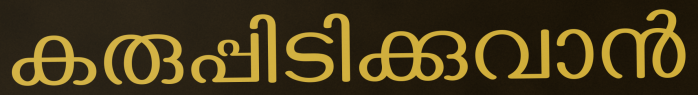
കരുപ്പിടിക്കുവാൻ